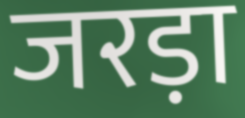
जरड़ा